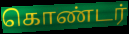
கொண்டர்